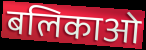
बलिकाओ